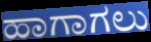
ಹಾಗಾಗಲು